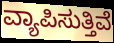
ವ್ಯಾಪಿಸುತ್ತಿವೆ